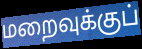
மறைவுக்குப்